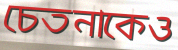
চেতনাকেও